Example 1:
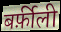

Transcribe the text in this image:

बर्फ़ीली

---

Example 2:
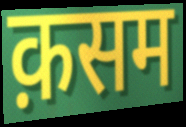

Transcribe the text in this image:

क़सम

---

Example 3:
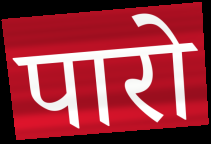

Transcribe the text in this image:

पारो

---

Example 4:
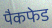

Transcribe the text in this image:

पैकफेड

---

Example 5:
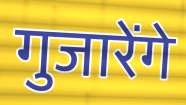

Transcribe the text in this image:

गुजारेंगे